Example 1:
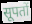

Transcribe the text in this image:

सूपतों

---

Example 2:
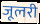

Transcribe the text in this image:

जूलरी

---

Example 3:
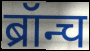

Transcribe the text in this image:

ब्रॉन्च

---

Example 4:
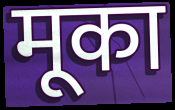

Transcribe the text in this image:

मूका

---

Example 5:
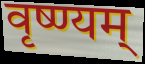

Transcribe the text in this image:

वृष्ण्यम्